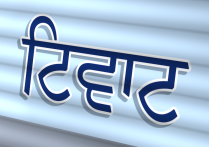
ਟਿਵਾਟ